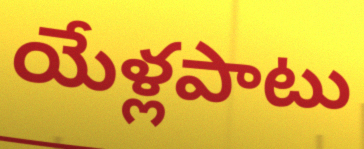
యేళ్లపాటు